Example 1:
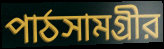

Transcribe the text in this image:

পাঠসামগ্রীর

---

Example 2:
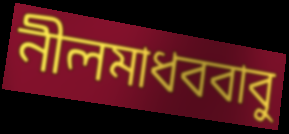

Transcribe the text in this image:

নীলমাধববাবু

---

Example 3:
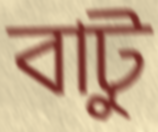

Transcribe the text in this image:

বাটু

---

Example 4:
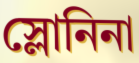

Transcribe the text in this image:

স্লোনিনা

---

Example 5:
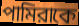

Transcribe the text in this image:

পামিরাকে